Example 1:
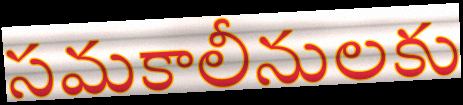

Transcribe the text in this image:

సమకాలీనులకు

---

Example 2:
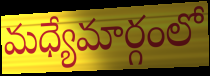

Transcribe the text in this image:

మధ్యేమార్గంలో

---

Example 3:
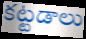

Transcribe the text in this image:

కట్టడాలు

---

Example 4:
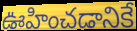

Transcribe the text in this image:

ఊహించడానికే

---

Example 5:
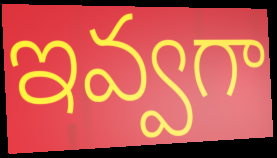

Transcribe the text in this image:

ఇవ్వగా